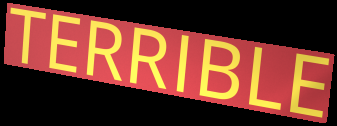
TERRIBLE